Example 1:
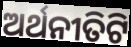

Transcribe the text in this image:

ଅର୍ଥନୀତିଟି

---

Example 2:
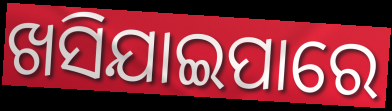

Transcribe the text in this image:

ଖସିଯାଇପାରେ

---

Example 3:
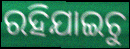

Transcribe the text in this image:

ରହିଯାଇଚୁ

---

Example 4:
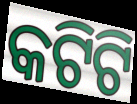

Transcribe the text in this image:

କଟିଟି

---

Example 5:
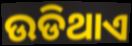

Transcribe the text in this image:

ଉଡିଥାଏ